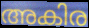
അകിര